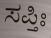
ಸಪ್ತಿಃ